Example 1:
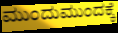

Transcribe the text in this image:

ಮುಂದುಮುಂದಕ್ಕೆ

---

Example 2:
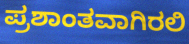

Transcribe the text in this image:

ಪ್ರಶಾಂತವಾಗಿರಲಿ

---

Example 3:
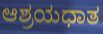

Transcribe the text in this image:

ಆಶ್ರಯಧಾತ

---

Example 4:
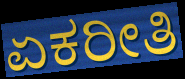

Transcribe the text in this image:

ಏಕರೀತಿ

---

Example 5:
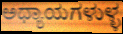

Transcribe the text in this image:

ಅಧ್ಯಾಯಗಳುಳ್ಳ